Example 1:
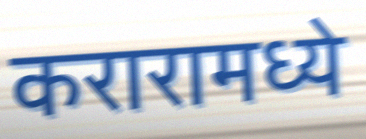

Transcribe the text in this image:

करारामध्ये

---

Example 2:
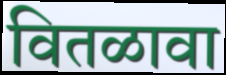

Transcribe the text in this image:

वितळावा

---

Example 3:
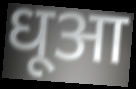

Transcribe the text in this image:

धूआ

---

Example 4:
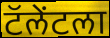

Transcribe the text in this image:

टॅलेंटला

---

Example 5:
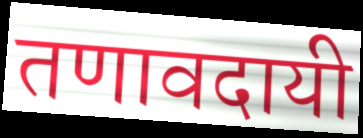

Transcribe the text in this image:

तणावदायी